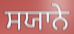
ਸਯਾਨੇ